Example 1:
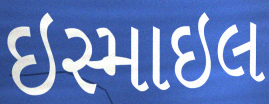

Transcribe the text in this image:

ઇસ્માઇલ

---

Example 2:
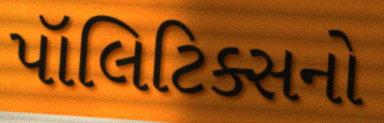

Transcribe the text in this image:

પૉલિટિક્સનો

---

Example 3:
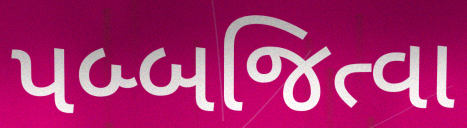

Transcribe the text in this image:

પબ્બજિત્વા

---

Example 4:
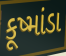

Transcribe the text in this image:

કૂષ્માંડા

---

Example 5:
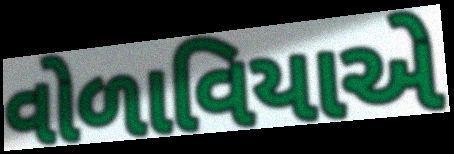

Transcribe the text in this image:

વોળાવિયાએ